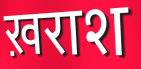
ख़राश